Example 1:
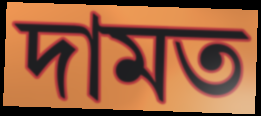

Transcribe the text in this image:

দামত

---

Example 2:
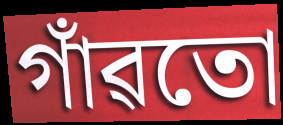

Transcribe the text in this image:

গাঁৱতো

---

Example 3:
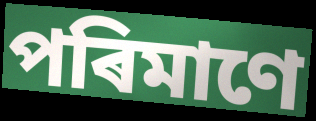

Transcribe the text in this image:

পৰিমাণে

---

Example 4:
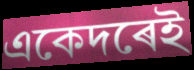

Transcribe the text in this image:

একেদৰেই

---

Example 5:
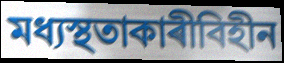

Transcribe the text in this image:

মধ্যস্থতাকাৰীবিহীন